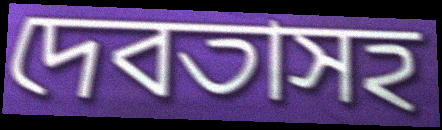
দেবতাসহ